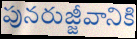
పునరుజ్జీవానికి